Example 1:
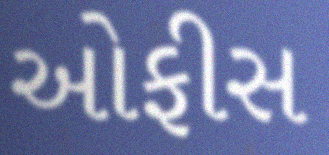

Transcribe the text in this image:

ઓફીસ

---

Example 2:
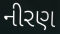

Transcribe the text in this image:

નીરણ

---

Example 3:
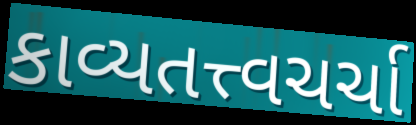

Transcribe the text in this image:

કાવ્યતત્ત્વચર્ચા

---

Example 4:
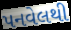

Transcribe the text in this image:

પનવેલથી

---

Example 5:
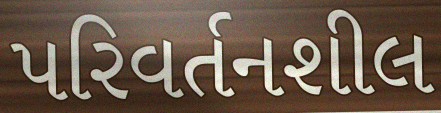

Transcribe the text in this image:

પરિવર્તનશીલ